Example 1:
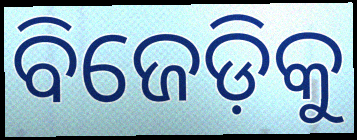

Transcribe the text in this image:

ବିଜେଡ଼ିକୁ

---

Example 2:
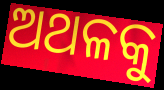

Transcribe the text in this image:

ଅଥଳକୁ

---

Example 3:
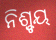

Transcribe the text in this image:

ନିଶ୍ୱ୍ଚୟ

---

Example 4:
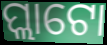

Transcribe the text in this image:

ପ୍ଲାଟୋ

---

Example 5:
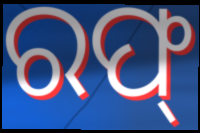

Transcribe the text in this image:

ରଫ୍